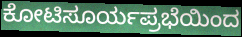
ಕೋಟಿಸೂರ್ಯಪ್ರಭೆಯಿಂದ